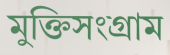
মুক্তিসংগ্রাম